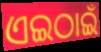
ଏଇଠାଇଁ